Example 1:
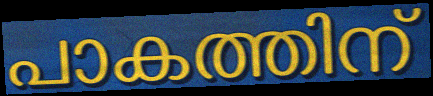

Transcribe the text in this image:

പാകത്തിന്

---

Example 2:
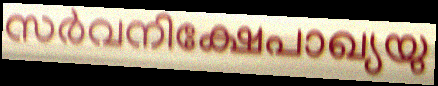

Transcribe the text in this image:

സർവനിക്ഷേപാഖ്യയു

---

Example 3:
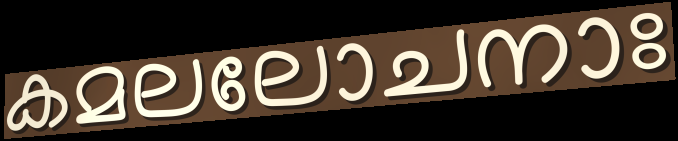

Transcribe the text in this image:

കമലലോചനാഃ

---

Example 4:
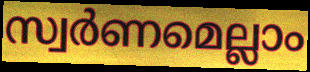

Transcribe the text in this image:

സ്വർണമെല്ലാം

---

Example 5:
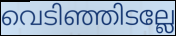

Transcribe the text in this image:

വെടിഞ്ഞിടല്ലേ